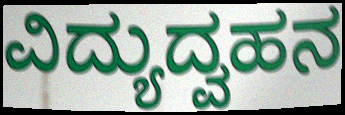
ವಿದ್ಯುದ್ವಹನ